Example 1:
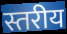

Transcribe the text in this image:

स्तरीय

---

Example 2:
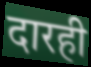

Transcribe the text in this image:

दारही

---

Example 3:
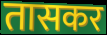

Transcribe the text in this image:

तासकर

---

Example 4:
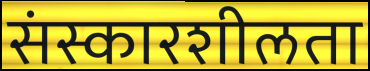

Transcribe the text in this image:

संस्कारशीलता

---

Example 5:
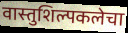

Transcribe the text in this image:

वास्तुशिल्पकलेचा